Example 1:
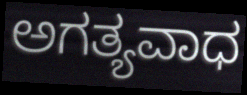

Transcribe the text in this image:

ಅಗತ್ಯವಾಧ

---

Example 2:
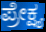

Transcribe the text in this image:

ಪ್ರೇಕ್ಷ್ಯ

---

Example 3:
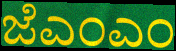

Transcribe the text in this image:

ಜೆಎಂಎಂ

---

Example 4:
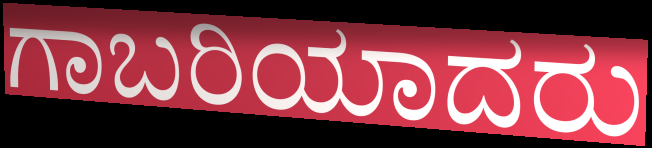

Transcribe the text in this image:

ಗಾಬರಿಯಾದರು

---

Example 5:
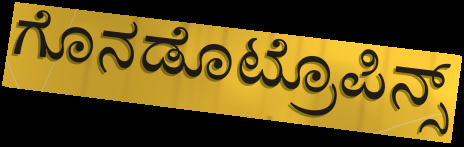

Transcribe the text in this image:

ಗೊನಡೊಟ್ರೊಪಿನ್ಸ್